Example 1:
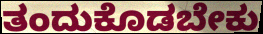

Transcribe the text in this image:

ತಂದುಕೊಡಬೇಕು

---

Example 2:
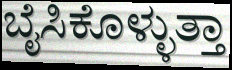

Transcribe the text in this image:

ಬೈಸಿಕೊಳ್ಳುತ್ತಾ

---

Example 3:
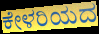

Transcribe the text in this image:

ಕೇಳರಿಯದ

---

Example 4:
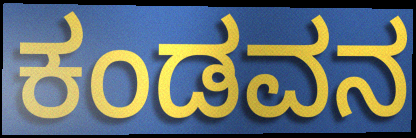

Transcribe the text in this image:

ಕಂಡವನ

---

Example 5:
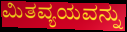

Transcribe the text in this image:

ಮಿತವ್ಯಯವನ್ನು